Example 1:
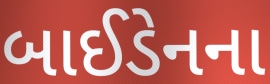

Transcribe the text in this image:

બાઈડેનના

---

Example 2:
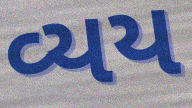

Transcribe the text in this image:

વ્યય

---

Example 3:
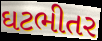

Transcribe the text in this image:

ઘટભીતર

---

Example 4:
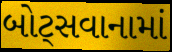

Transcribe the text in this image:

બોટ્સવાનામાં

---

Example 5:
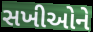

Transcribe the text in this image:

સખીઓને